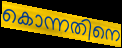
കൊന്നതിനെ